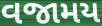
વજામય